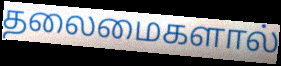
தலைமைகளால்